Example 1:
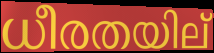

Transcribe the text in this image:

ധീരതയില്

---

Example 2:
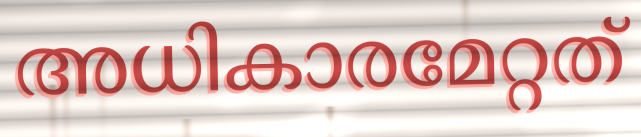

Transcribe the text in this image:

അധികാരമേറ്റത്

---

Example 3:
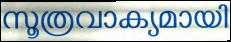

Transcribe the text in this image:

സൂത്രവാക്യമായി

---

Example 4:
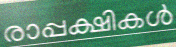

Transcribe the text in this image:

രാപ്പക്ഷികൾ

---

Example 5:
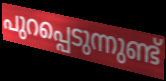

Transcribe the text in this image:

പുറപ്പെടുന്നുണ്ട്